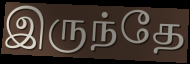
இருந்தே